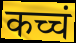
कच्चं